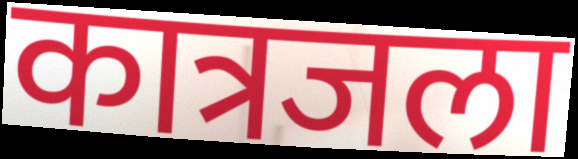
कात्रजला